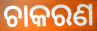
ଚାକରଣ